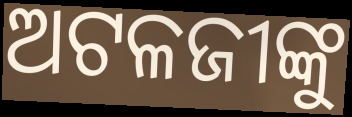
ଅଟଳଜୀଙ୍କୁ